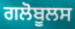
ਗਲੋਬੂਲਸ